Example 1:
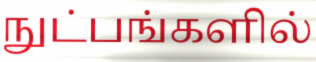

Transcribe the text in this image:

நுட்பங்களில்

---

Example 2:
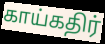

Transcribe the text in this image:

காய்கதிர்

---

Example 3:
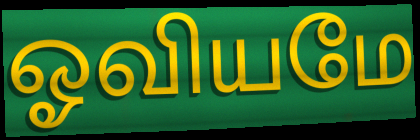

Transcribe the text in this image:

ஓவியமே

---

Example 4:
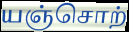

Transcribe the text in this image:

யஞ்சொற்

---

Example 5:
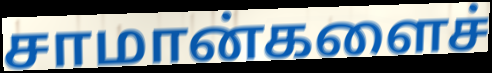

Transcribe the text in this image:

சாமான்களைச்